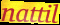
nattil